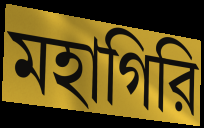
মহাগিরি